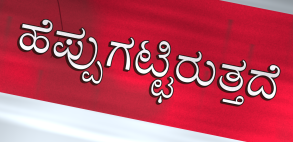
ಹೆಪ್ಪುಗಟ್ಟಿರುತ್ತದೆ